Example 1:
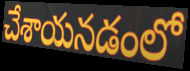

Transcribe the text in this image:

చేశాయనడంలో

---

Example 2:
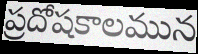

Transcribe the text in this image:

ప్రదోషకాలమున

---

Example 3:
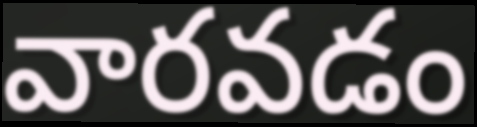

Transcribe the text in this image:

వారవడం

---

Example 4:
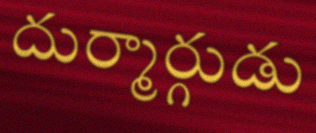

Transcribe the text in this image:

దుర్మార్గుడు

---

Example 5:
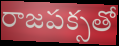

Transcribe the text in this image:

రాజపక్సతో